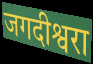
जगदीश्वरा